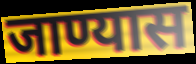
जाण्यास